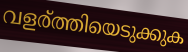
വളര്ത്തിയെടുക്കുക